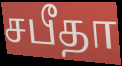
சபீதா